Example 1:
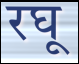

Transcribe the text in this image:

रघू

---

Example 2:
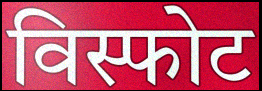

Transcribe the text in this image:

विस्फोट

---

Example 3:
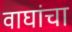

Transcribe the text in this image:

वाघांचा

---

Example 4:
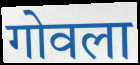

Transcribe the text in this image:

गोवला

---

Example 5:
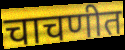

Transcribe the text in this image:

चाचणीत